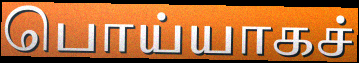
பொய்யாகச்